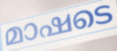
മാഷടെ